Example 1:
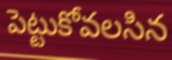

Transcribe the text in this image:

పెట్టుకోవలసిన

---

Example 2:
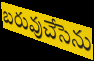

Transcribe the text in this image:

బరువుచేసెను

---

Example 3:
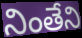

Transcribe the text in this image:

నింతేని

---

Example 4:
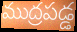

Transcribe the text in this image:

ముద్రపడ్డ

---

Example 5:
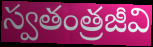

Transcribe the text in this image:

స్వతంత్రజీవి